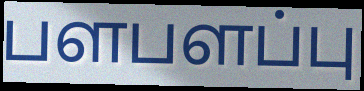
பளபளப்பு